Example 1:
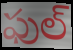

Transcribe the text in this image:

ఫుల్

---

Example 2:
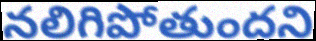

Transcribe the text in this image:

నలిగిపోతుందని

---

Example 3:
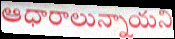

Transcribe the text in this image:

ఆధారాలున్నాయని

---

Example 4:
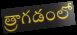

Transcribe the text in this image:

త్రాగడంలో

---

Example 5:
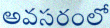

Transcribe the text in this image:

అవసరంలో